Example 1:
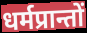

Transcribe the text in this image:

धर्मप्रान्तों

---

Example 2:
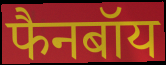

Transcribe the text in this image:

फैनबॉय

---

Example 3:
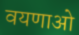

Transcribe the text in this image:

वयणाओ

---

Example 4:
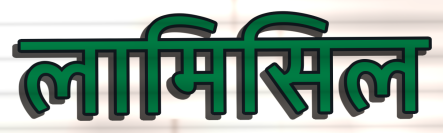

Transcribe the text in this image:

लामिसिल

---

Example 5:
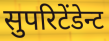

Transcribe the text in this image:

सुपरिटेंडेन्ट